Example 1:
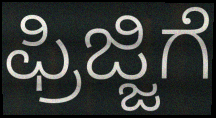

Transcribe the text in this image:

ಫ್ರಿಜ್ಜಿಗೆ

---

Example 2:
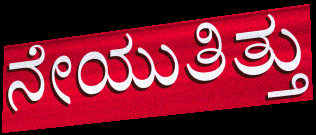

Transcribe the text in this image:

ನೇಯುತಿತ್ತು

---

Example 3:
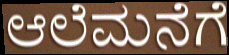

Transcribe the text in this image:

ಆಲೆಮನೆಗೆ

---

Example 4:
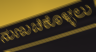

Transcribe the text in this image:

ನುಣುಚಿಕೊಳ್ಳಲು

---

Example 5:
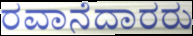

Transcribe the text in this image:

ರವಾನೆದಾರರು